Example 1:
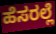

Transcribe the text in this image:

ಹೆಸರಲ್ಲೆ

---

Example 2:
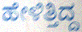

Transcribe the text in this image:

ಹೇಳಿತ್ತಿದ್ದ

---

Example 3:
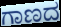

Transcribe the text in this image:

ಗಾಣದ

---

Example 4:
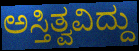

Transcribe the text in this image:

ಅಸ್ತಿತ್ವವಿದ್ದು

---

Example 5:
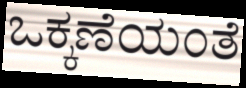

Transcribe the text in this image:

ಒಕ್ಕಣೆಯಂತೆ